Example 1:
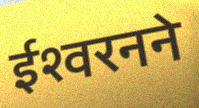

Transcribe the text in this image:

ईश्वरनने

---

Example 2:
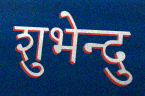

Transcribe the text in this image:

शुभेन्दु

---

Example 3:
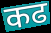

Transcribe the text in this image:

कढ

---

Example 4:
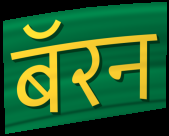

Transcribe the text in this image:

बॅरन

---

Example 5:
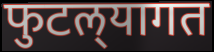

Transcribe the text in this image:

फुटल्यागत